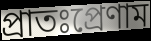
প্রাতঃপ্রেণাম